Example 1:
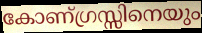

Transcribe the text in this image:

കോണ്ഗ്രസ്സിനെയും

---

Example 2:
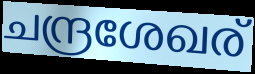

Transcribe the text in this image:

ചന്ദ്രശേഖര്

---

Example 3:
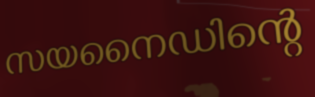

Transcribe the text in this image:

സയനൈഡിന്റെ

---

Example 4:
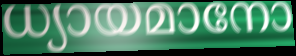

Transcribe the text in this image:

ധ്യായമാനോ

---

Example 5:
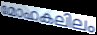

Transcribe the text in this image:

മോഹകലിലം